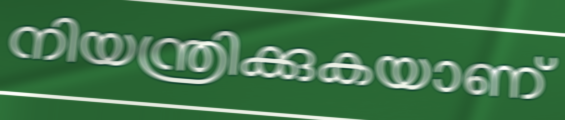
നിയന്ത്രിക്കുകയാണ്